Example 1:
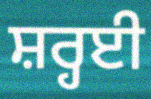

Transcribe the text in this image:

ਸ਼ਰ੍ਹਈ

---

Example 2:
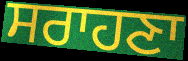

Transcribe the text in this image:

ਸਰਾਹਣਾ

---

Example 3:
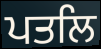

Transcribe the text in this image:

ਪਤਲਿ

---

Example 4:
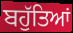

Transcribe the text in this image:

ਬਹੁੱਤਿਆਂ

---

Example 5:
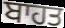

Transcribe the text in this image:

ਬਾਹਤ